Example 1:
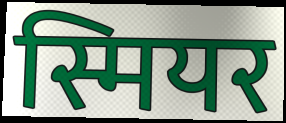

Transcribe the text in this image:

स्मियर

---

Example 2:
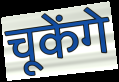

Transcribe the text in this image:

चूकेंगे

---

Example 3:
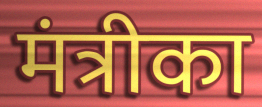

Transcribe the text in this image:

मंत्रीका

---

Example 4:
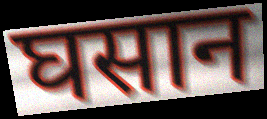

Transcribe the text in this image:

घसान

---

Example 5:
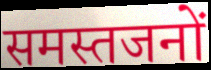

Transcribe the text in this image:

समस्तजनों